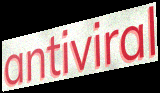
antiviral